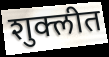
शुक्लीत